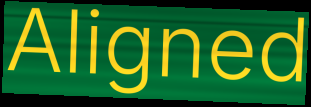
Aligned